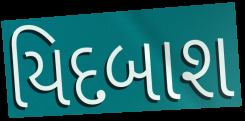
યિદબાશ